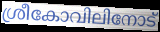
ശ്രീകോവിലിനോട്